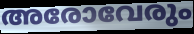
അരോവേരും